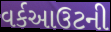
વર્કઆઉટની